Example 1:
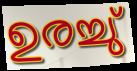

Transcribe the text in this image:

ഉരച്ചു്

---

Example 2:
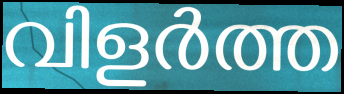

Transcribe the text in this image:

വിളർത്ത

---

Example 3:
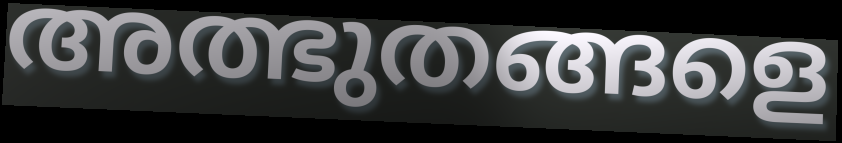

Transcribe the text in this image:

അത്ഭുതങ്ങളെ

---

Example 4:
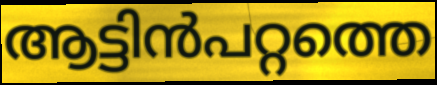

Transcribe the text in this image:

ആട്ടിൻപറ്റത്തെ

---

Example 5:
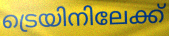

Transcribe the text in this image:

ട്രെയിനിലേക്ക്